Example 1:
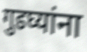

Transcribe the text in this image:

गुडघ्यांना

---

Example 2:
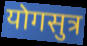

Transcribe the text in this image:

योगसुत्र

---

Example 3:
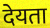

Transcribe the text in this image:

देयता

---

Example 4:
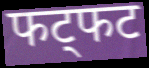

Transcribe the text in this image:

फट्फट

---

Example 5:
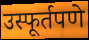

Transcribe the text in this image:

उस्फूर्तपणे